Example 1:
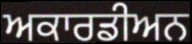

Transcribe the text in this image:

ਅਕਾਰਡੀਅਨ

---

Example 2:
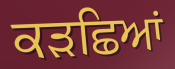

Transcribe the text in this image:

ਕੜਛਿਆਂ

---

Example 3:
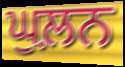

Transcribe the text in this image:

ਘੁਲ਼ਨ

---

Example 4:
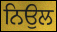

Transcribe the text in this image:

ਨਿਉਲ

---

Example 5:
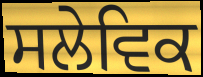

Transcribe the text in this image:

ਸਲੇਵਿਕ